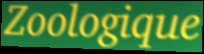
Zoologique